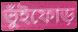
ভুঁইফোড়